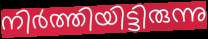
നിർത്തിയിട്ടിരുന്നു